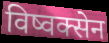
विष्वक्सेन